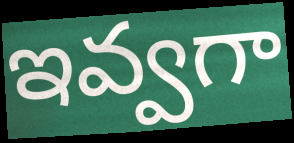
ఇవ్వగా